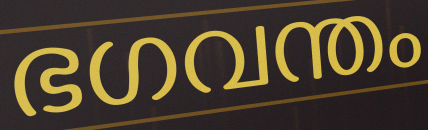
ഭഗവന്തം